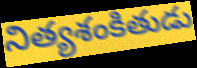
నిత్యశంకితుడు